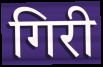
गिरी